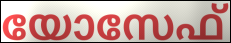
യോസേഫ്